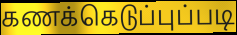
கணக்கெடுப்புப்படி